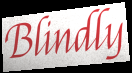
Blindly